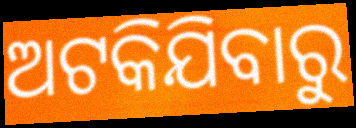
ଅଟକିଯିବାରୁ